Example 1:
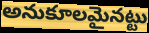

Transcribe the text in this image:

అనుకూలమైనట్టు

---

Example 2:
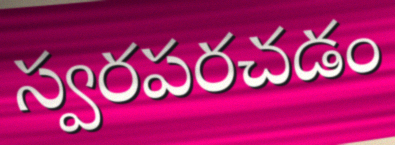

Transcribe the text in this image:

స్వరపరచడం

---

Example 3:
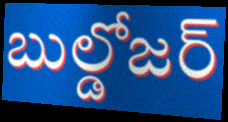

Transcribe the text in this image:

బుల్డోజర్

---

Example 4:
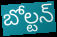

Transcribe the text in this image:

బోల్టన్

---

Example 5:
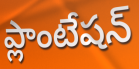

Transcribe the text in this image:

ప్లాంటేషన్